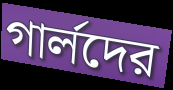
গার্লদের